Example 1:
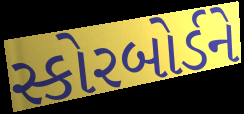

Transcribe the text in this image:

સ્કોરબોર્ડને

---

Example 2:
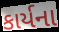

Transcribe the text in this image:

કાર્યના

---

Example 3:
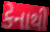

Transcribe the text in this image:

કેનાથી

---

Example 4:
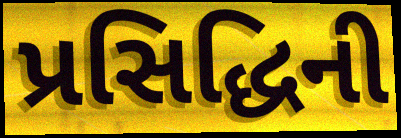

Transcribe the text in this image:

પ્રસિદ્ધિની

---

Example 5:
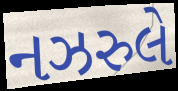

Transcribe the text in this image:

નઝરુલે